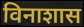
विनाशास